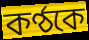
কণ্ঠকে